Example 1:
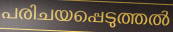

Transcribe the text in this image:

പരിചയപ്പെടുത്തൽ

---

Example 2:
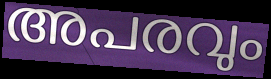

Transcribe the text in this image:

അപരവും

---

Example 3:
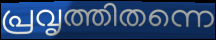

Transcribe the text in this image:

പ്രവൃത്തിതന്നെ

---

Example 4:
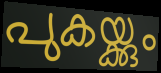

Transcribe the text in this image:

പുകയ്ക്കും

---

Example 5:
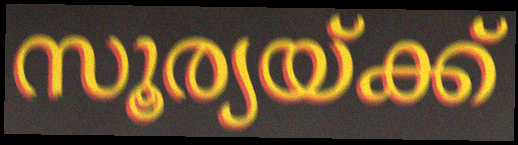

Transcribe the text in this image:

സൂര്യയ്ക്ക്